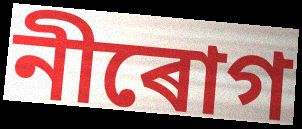
নীৰোগ